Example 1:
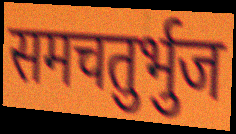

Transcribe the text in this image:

समचतुर्भुज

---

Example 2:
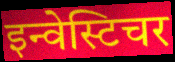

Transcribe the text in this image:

इन्वेस्टिचर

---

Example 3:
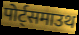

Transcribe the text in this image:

पोर्ट्समाउथ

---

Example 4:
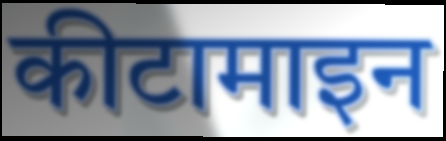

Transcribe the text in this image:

कीटामाइन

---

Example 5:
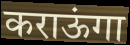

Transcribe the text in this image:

कराऊंगा